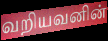
வறியவனின்